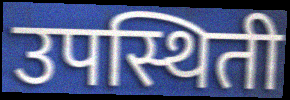
उपस्थिती